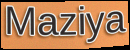
Maziya